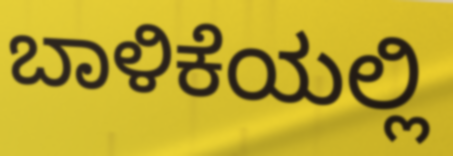
ಬಾಳಿಕೆಯಲ್ಲಿ